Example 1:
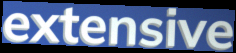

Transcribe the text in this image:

extensive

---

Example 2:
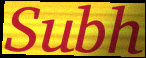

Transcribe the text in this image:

Subh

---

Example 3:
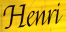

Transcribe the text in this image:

Henri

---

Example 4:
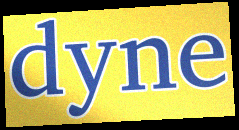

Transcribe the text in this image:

dyne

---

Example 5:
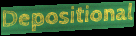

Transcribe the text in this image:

Depositional